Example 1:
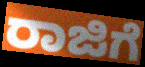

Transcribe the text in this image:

ರಾಜಿಗೆ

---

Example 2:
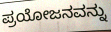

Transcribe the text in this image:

ಪ್ರಯೋಜನವನ್ನು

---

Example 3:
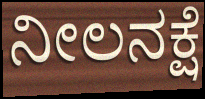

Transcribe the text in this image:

ನೀಲನಕ್ಷೆ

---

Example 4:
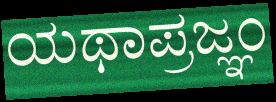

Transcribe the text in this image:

ಯಥಾಪ್ರಜ್ಞಂ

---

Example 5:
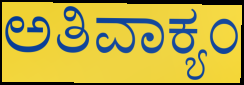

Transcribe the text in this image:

ಅತಿವಾಕ್ಯಂ